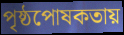
পৃষ্ঠপোষকতায়